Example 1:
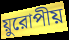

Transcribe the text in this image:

য়ুরোপীয়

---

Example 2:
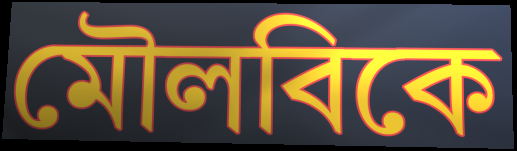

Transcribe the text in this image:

মৌলবিকে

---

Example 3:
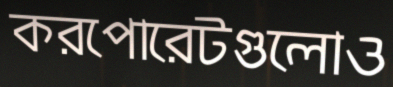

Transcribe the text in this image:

করপোরেটগুলোও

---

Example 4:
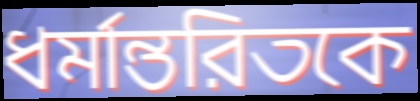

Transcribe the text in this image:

ধর্মান্তরিতকে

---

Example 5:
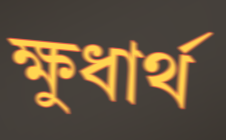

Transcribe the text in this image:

ক্ষুধার্থ